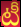
టీ